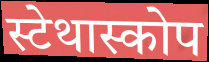
स्टेथास्कोप